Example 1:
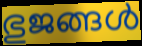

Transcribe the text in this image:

ഭുജങ്ങൾ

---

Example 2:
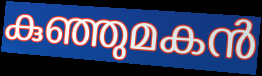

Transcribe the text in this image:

കുഞ്ഞുമകൻ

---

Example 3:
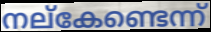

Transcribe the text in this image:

നല്കേണ്ടെന്ന്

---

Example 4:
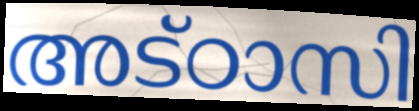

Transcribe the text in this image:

അട്ഠാസി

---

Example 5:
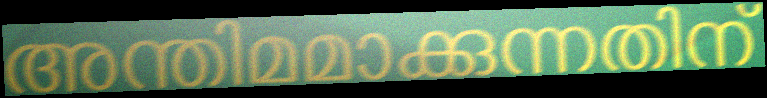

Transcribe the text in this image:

അന്തിമമാക്കുന്നതിന്